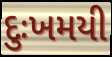
દુઃખમયી